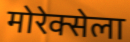
मोरेक्सेला